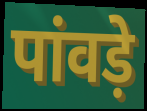
पांवड़े